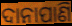
ଦାନାପାଣି